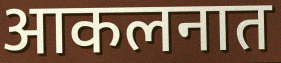
आकलनात